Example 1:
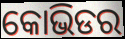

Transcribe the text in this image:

କୋଭିଡର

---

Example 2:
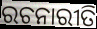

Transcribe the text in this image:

ରଚନାରୀତି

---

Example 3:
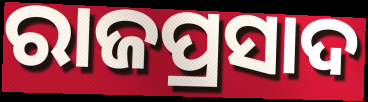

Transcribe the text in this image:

ରାଜପ୍ରସାଦ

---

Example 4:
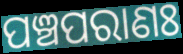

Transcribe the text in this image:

ପଞ୍ଚପରାଣଃ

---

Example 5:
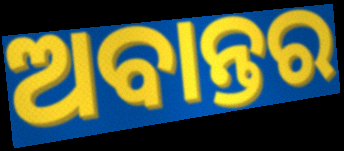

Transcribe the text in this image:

ଅବାନ୍ତର